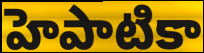
హెపాటికా